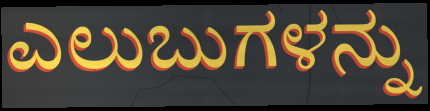
ಎಲುಬುಗಳನ್ನು